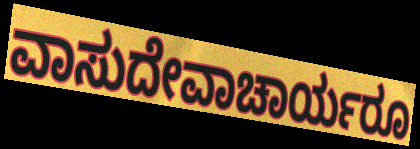
ವಾಸುದೇವಾಚಾರ್ಯರೂ